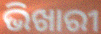
ଭିଖାରୀ